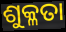
ଶୁକ୍ଳତା